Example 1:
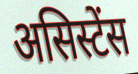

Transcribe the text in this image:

असिस्टेंस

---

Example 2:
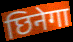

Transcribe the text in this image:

छिनेगा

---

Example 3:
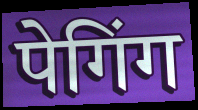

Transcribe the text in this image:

पेगिंग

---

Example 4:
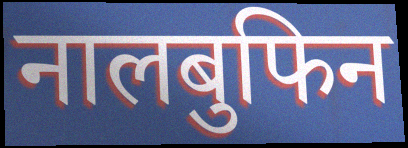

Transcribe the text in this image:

नालबुफिन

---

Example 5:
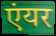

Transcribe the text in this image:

एंयर